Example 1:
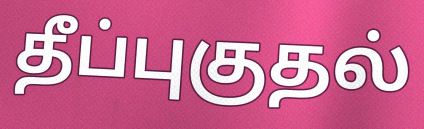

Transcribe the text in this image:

தீப்புகுதல்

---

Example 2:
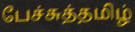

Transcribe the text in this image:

பேச்சுத்தமிழ்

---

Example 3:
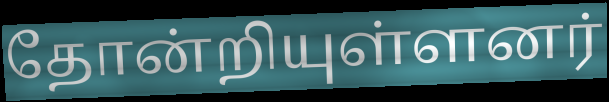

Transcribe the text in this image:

தோன்றியுள்ளனர்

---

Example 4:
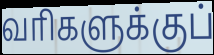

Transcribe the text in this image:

வரிகளுக்குப்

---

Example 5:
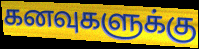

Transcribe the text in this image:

கனவுகளுக்கு